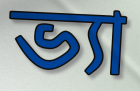
ভ্যা